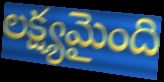
లక్ష్యమైంది